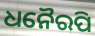
ଧନୈରପି